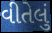
વીતેલું